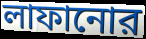
লাফানোর